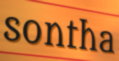
sontha